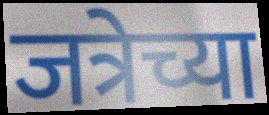
जत्रेच्या